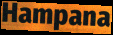
Hampana